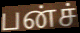
பன்ச்